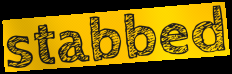
stabbed